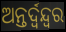
ଅନ୍ତର୍ଦ୍ୱନ୍ଦ୍ୱର